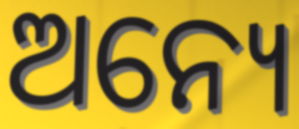
ଅନ୍ୟେ